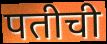
पतीची